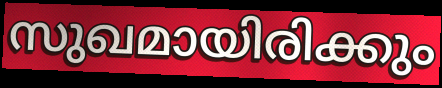
സുഖമായിരിക്കും